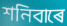
শনিবাৰে